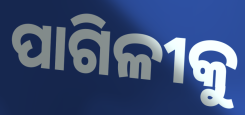
ପାଗିଳୀକୁ